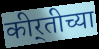
कीर्तीच्या